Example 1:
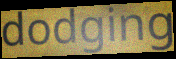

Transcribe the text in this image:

dodging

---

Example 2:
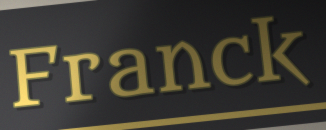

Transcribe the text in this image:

Franck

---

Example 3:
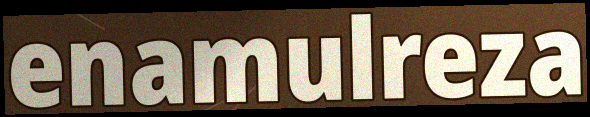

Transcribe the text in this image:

enamulreza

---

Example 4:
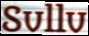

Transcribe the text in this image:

Sullu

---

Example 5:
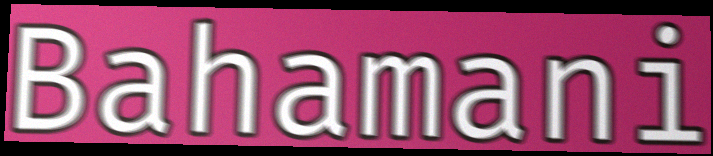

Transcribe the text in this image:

Bahamani